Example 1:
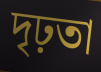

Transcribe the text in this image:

দৃঢ়তা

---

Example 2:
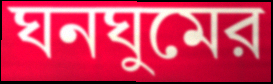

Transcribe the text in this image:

ঘনঘুমের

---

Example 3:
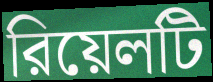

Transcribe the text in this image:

রিয়েলটি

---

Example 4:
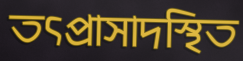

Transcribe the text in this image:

তৎপ্রাসাদস্থিত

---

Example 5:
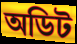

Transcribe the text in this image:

অডিট